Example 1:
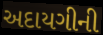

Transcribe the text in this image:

અદાયગીની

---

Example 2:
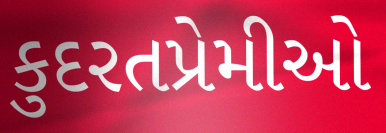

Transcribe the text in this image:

કુદરતપ્રેમીઓ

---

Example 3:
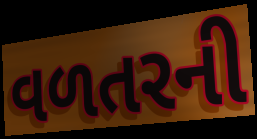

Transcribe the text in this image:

વળતરની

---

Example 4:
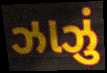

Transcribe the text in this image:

ઝાઝું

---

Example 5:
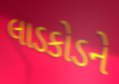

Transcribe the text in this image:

લાડકોડને